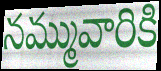
నమ్మువారికి